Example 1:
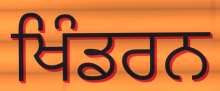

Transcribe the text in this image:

ਖਿੰਡਰਨ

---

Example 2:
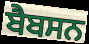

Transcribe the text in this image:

ਬੈਬਸਨ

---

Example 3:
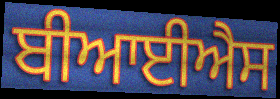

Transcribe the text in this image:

ਬੀਆਈਐਸ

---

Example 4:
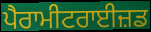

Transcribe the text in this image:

ਪੈਰਾਮੀਟਰਾਈਜ਼ਡ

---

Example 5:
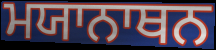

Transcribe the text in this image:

ਮਯਾਨਾਥਨ